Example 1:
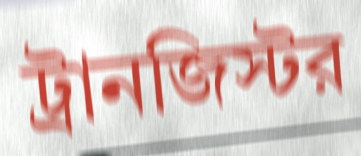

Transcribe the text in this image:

ট্রানজিস্টর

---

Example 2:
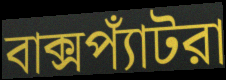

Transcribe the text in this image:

বাক্সপ্যাঁটরা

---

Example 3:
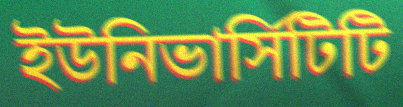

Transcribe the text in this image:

ইউনিভার্সিটিটি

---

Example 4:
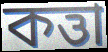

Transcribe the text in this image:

কত্তা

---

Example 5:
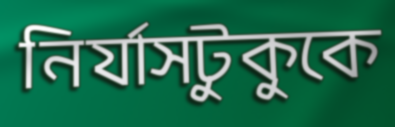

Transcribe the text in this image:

নির্যাসটুকুকে